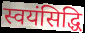
स्वयंसिद्धि